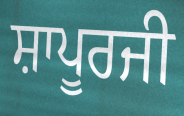
ਸ਼ਾਪੂਰਜੀ